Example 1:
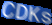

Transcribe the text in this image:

CDKs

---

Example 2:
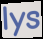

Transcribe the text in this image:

lys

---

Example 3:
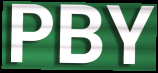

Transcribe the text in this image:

PBY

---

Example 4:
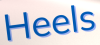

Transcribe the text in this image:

Heels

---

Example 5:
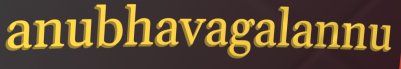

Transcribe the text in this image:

anubhavagalannu